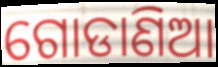
ଗୋଡାଣିଆ